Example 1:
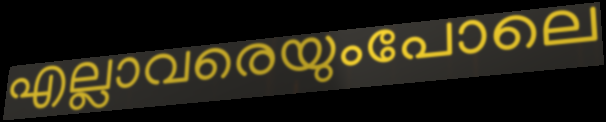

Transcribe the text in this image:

എല്ലാവരെയുംപോലെ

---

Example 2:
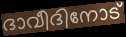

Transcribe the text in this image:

ദാവീദിനോട്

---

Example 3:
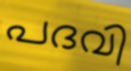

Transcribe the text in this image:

പദവി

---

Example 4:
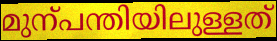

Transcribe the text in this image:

മുന്പന്തിയിലുള്ളത്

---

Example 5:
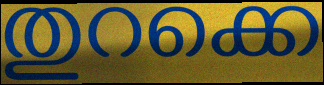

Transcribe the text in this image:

തുറക്കെ